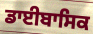
ਡਾਈਬਾਸਿਕ